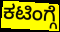
ಕಟಿಂಗ್ಗೆ